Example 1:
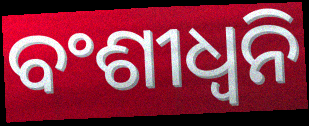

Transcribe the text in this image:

ବଂଶୀଧ୍ବନି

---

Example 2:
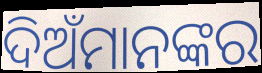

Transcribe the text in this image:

ଦିଅଁମାନଙ୍କର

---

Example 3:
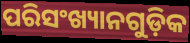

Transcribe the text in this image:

ପରିସଂଖ୍ୟାନଗୁଡ଼ିକ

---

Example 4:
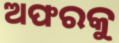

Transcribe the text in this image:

ଅଫରକୁ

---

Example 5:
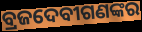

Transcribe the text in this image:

ବ୍ରଜଦେବୀଗଣଙ୍କର